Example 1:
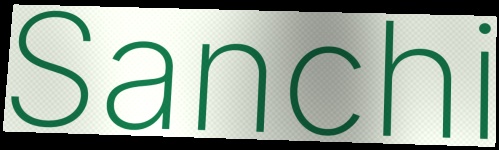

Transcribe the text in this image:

Sanchi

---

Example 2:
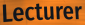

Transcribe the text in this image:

Lecturer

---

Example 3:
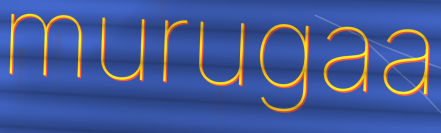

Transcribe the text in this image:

murugaa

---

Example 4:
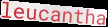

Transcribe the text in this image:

leucantha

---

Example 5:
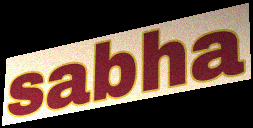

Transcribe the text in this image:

sabha